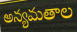
అన్యమతాల